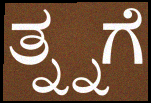
ತ್ನ್ನಗೆ